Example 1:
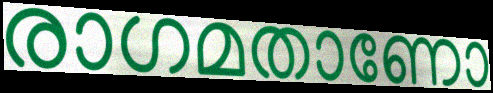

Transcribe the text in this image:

രാഗമതാണോ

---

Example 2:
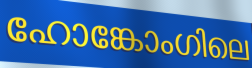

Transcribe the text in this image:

ഹോങ്കോംഗിലെ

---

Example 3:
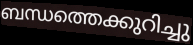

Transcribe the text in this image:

ബന്ധത്തെക്കുറിച്ചു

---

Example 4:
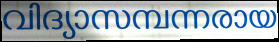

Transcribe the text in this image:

വിദ്യാസമ്പന്നരായ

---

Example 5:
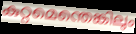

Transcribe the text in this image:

കുറ്റമെന്തെങ്കിലും